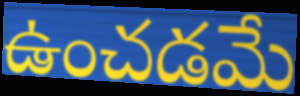
ఉంచడమే